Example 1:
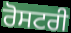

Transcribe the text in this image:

ਰੋਸਟਰੀ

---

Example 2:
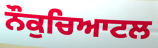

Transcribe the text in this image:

ਨੌਕੁਚਿਆਟਲ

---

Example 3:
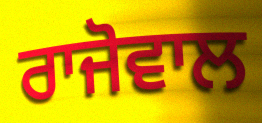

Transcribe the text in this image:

ਰਾਜੋਵਾਲ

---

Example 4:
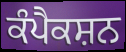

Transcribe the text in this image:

ਕੰਪੈਕਸ਼ਨ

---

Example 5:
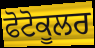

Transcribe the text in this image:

ਫੋਟੋਕੂਲਰ